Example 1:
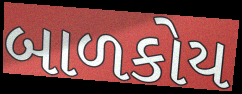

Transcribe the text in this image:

બાળકોય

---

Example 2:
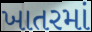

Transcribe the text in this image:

ખાતરમાં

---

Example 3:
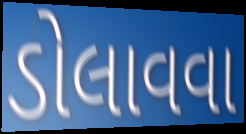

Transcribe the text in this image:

ડોલાવવા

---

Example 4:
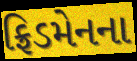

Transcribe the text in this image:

ફ્રિડમેનના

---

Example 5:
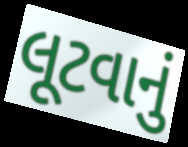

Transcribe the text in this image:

લૂટવાનું